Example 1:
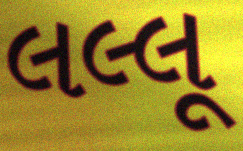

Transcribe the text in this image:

લલ્લૂ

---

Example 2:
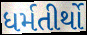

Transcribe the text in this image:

ધર્મતીર્થો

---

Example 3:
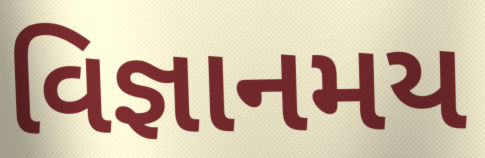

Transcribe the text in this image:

વિજ્ઞાનમય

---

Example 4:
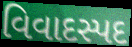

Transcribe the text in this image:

વિવાદસ્પદ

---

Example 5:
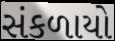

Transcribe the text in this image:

સંકળાયો